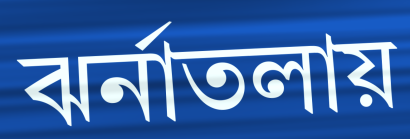
ঝর্নাতলায়